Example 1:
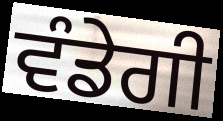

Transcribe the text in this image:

ਵੰਡੇਗੀ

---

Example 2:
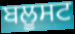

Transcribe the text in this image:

ਬਲੂਸਟ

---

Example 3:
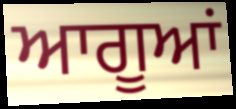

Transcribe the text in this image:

ਆਗੂਆਂ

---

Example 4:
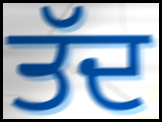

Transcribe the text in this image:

ਤੱਦ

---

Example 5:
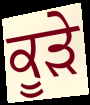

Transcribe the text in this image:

ਕੂਡ਼ੇ